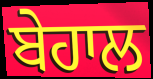
ਬੇਹਾਲ